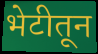
भेटीतून